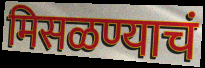
मिसळण्याचं